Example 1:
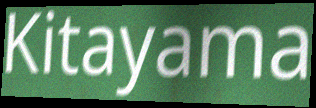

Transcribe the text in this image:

Kitayama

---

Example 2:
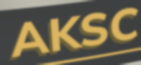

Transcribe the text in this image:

AKSC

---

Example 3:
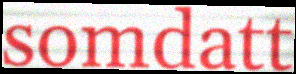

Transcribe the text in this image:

somdatt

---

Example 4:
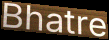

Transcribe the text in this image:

Bhatre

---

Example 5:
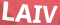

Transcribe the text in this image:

LAIV